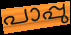
പാപ്പു